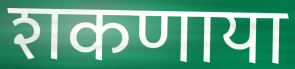
शकणाया